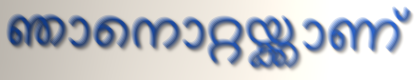
ഞാനൊറ്റയ്ക്കാണ്